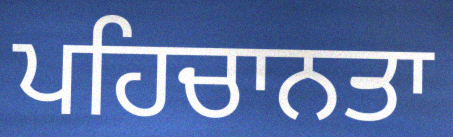
ਪਹਿਚਾਨਤਾ